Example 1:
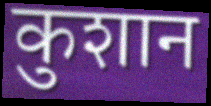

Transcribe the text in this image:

कुशान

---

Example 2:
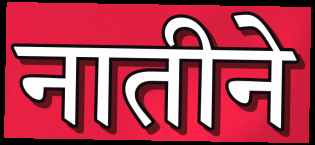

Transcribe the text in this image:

नातीने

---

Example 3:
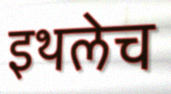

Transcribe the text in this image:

इथलेच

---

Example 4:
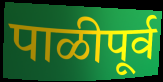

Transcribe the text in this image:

पाळीपूर्व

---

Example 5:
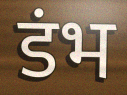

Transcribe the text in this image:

डंभ